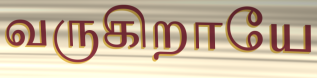
வருகிறாயே